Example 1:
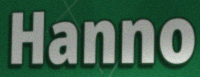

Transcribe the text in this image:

Hanno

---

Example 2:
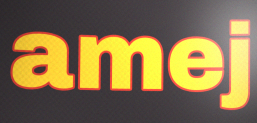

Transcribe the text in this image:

amej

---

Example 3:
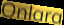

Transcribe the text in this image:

Onlara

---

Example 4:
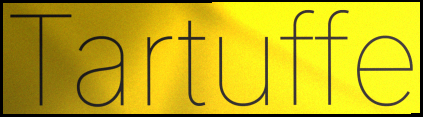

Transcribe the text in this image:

Tartuffe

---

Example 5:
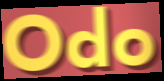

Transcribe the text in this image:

Odo